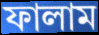
ফালাম